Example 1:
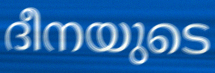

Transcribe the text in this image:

ദീനയുടെ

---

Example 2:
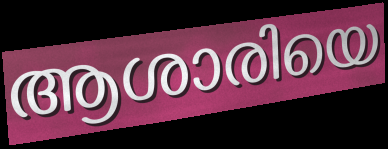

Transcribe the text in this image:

ആശാരിയെ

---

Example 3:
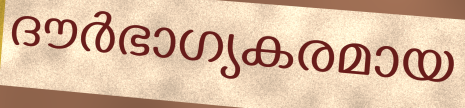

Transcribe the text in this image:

ദൗർഭാഗ്യകരമായ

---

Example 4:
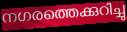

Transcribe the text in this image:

നഗരത്തെക്കുറിച്ചു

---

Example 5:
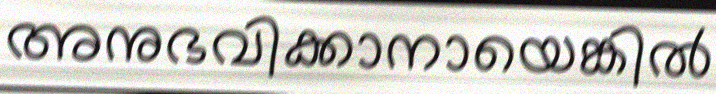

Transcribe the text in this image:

അനുഭവിക്കാനായെങ്കിൽ